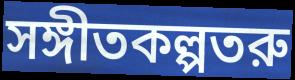
সঙ্গীতকল্পতরু